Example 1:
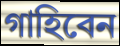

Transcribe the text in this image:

গাহিবেন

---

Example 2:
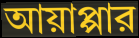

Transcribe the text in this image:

আয়াপ্পার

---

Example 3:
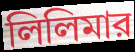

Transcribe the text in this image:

লিলিমার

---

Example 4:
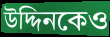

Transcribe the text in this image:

উদ্দিনকেও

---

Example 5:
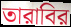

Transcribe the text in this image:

তারাবির